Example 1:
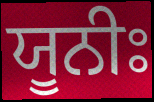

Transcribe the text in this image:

ਯੂਨੀਃ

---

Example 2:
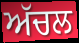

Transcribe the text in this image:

ਅੱਚਲ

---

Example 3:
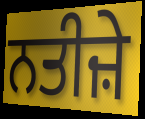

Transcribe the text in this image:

ਨਤੀਜ਼ੇ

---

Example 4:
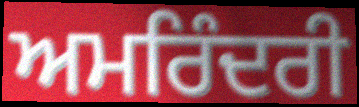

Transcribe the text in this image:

ਅਮਰਿੰਦਰੀ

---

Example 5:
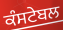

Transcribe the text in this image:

ਕੰਸਟੇਬਲ